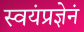
स्वयंप्रज्ञेनं